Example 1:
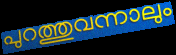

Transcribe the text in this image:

പുറത്തുവന്നാലും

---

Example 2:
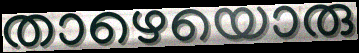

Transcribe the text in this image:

താഴെയൊരു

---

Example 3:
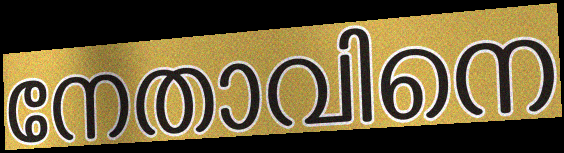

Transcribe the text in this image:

നേതാവിനെ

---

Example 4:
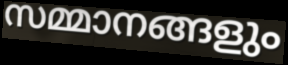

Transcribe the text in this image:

സമ്മാനങ്ങളും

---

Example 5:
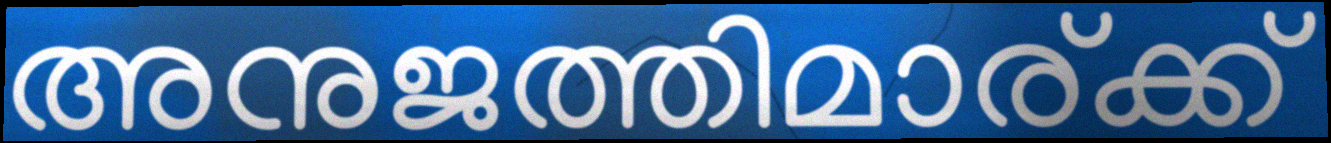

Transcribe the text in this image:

അനുജത്തിമാര്ക്ക്